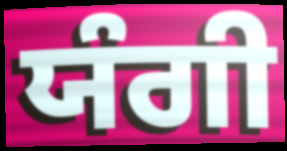
ਯੰਗੀ